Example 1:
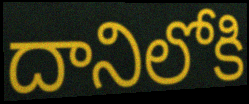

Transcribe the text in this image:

దానిలోకి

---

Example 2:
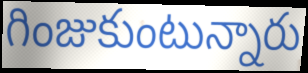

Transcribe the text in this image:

గింజుకుంటున్నారు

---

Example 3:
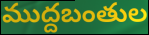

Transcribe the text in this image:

ముద్దబంతుల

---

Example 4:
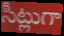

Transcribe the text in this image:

సీట్లుగా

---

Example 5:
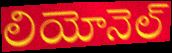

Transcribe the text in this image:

లియోనెల్